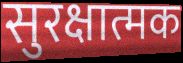
सुरक्षात्मक